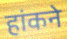
हांकने